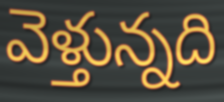
వెళ్తున్నది